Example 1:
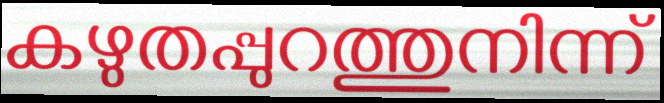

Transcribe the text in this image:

കഴുതപ്പുറത്തുനിന്ന്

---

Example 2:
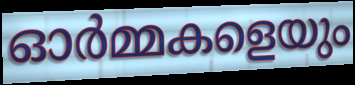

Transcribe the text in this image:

ഓർമ്മകളെയും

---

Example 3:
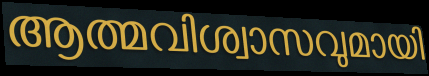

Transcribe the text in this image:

ആത്മവിശ്വാസവുമായി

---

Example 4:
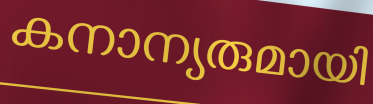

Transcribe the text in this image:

കനാന്യരുമായി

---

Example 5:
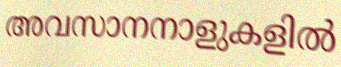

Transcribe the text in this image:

അവസാനനാളുകളിൽ